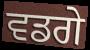
ਵਡਗੇ